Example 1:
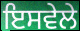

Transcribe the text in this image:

ਇਸਵੇਲੇ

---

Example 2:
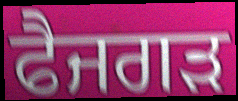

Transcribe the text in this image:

ਫੈਜਗੜ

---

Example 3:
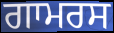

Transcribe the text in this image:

ਗਾਮਰਸ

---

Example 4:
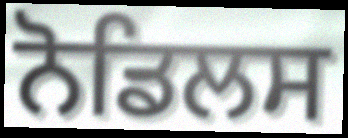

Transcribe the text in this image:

ਨੋਡਿਲਸ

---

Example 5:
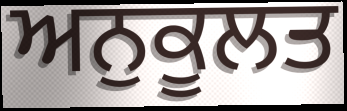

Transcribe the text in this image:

ਅਨੁਕੂਲਤ